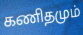
கணிதமும்